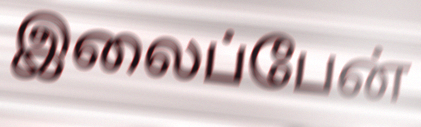
இலைப்பேன்